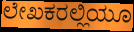
ಲೇಖಕರಲ್ಲಿಯೂ